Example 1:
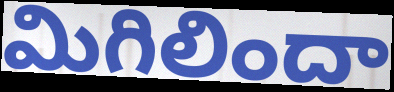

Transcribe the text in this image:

మిగిలిందా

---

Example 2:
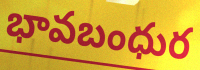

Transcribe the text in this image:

భావబంధుర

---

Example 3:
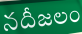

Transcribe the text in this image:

నదీజలం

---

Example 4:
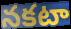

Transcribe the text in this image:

నకటా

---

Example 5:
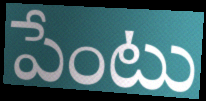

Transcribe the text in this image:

పేంటు